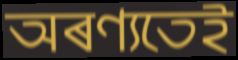
অৰণ্যতেই